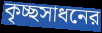
কৃচ্ছসাধনের